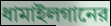
ধামাইলগানের